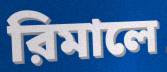
রিমালে